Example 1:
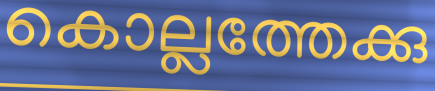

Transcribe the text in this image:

കൊല്ലത്തേക്കു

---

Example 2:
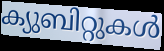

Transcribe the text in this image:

ക്യുബിറ്റുകൾ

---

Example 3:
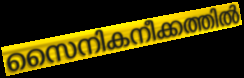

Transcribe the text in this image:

സൈനികനീക്കത്തിൽ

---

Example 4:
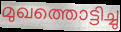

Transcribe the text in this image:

മുഖത്തൊട്ടിച്ചു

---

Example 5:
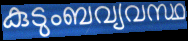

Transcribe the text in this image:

കുടുംബവ്യവസ്ഥ